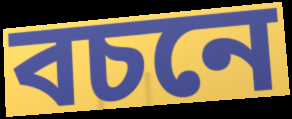
বচনে